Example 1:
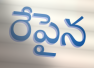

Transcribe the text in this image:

రేపైన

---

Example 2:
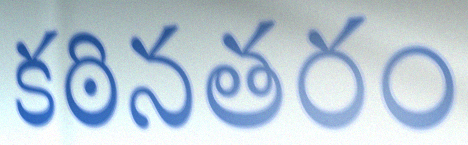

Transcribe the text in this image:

కఠినతరం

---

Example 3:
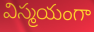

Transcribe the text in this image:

విస్మయంగా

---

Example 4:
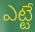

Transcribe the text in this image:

ఎట్టే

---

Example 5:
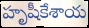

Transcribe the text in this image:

హృషీకేశాయ